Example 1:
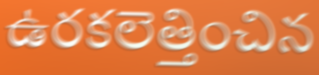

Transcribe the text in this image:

ఉరకలెత్తించిన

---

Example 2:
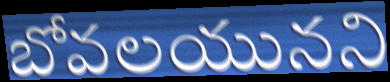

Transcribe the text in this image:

బోవలయునని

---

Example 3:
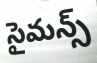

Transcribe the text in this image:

సైమన్స్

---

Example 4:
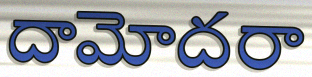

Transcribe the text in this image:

దామోదరా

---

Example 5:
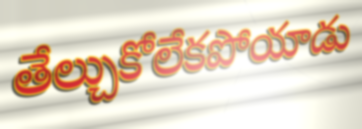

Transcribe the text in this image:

తేల్చుకోలేకపోయాడు